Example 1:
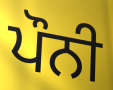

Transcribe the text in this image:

ਪੌਨੀ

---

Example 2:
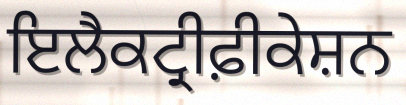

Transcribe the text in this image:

ਇਲੈਕਟ੍ਰੀਫ਼ੀਕੇਸ਼ਨ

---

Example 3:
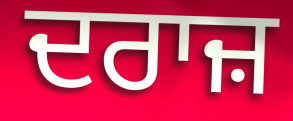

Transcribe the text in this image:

ਦਰਾਜ਼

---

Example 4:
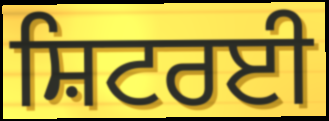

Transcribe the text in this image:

ਸ਼ਿਟਰਈ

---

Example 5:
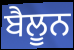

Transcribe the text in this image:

ਬੈਲੂਨ